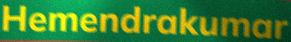
Hemendrakumar